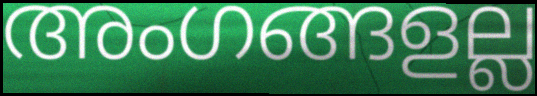
അംഗങ്ങളല്ല